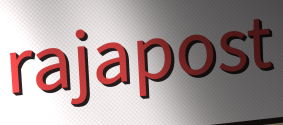
rajapost